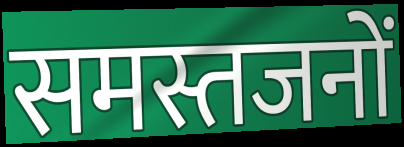
समस्तजनों